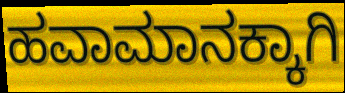
ಹವಾಮಾನಕ್ಕಾಗಿ